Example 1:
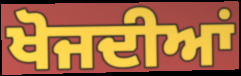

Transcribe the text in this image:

ਖੋਜਦੀਆਂ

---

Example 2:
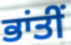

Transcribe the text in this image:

ਭਾਂਤੀਂ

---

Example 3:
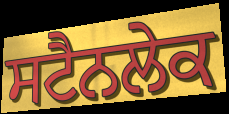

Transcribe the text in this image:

ਸਟੈਨਲੇਕ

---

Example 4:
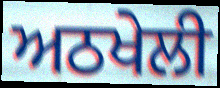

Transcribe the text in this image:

ਅਠਖੇਲੀ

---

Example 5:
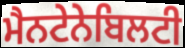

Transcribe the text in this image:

ਮੈਨਟੇਨੇਬਿਲਟੀ